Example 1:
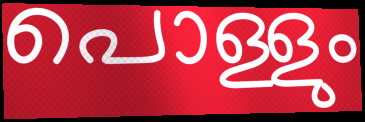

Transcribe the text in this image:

പൊള്ളും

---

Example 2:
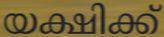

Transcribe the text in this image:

യക്ഷിക്ക്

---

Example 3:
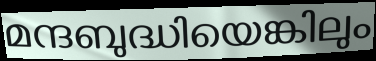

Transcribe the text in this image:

മന്ദബുദ്ധിയെങ്കിലും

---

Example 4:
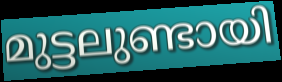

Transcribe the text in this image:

മുട്ടലുണ്ടായി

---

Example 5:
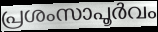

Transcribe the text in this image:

പ്രശംസാപൂർവം